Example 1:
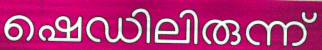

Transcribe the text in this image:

ഷെഡിലിരുന്ന്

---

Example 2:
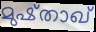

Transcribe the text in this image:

മുഷ്താഖ്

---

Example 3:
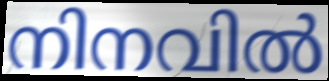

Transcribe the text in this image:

നിനവിൽ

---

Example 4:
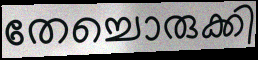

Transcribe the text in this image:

തേച്ചൊരുക്കി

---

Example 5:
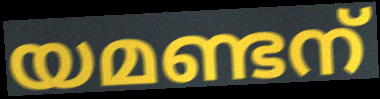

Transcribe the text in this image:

യമണ്ടന്